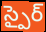
స్పైర్